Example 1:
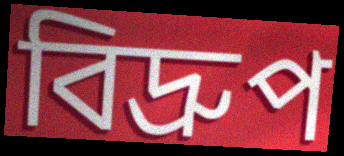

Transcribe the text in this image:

বিদ্ৰুপ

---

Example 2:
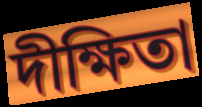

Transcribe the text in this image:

দীক্ষিতা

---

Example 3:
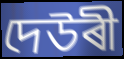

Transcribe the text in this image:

দেউৰী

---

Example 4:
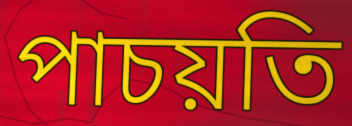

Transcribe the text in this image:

পাচয়তি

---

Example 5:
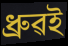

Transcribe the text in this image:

ধ্ৰুৱই